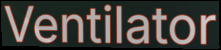
Ventilator